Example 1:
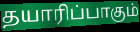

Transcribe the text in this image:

தயாரிப்பாகும்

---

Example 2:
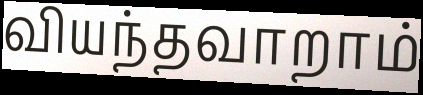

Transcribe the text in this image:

வியந்தவாறாம்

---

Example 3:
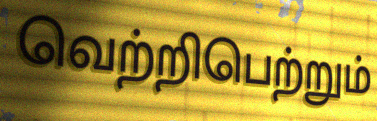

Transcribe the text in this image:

வெற்றிபெற்றும்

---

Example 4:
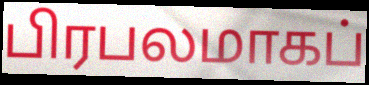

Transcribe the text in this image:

பிரபலமாகப்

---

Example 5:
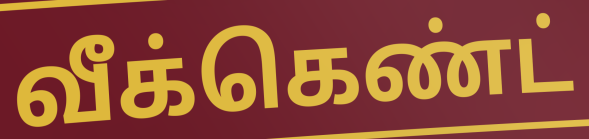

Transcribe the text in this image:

வீக்கெண்ட்